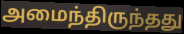
அமைந்திருந்தது